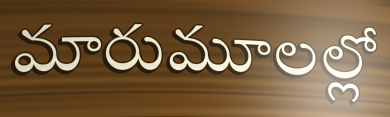
మారుమూలల్లో